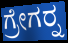
ಗ್ರೇಗರ್‍ನ